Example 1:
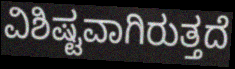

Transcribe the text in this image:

ವಿಶಿಷ್ಟವಾಗಿರುತ್ತದೆ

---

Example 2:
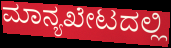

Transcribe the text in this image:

ಮಾನ್ಯಖೇಟದಲ್ಲಿ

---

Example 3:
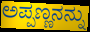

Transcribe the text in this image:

ಅಪ್ಪಣ್ಣನನ್ನು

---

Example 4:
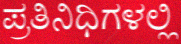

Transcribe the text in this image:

ಪ್ರತಿನಿಧಿಗಳಲ್ಲಿ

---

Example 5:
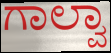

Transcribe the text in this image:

ಗಾಲ್ವಾ